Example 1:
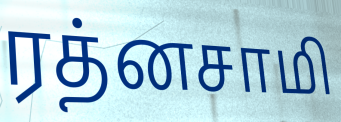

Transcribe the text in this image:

ரத்னசாமி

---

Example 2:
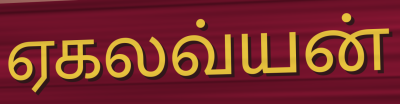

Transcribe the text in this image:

ஏகலவ்யன்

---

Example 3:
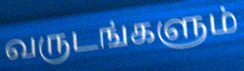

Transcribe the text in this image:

வருடங்களும்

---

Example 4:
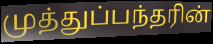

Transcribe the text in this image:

முத்துப்பந்தரின்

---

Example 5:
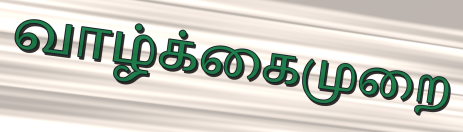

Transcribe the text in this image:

வாழ்க்கைமுறை